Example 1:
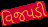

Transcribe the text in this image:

વિજપડી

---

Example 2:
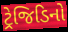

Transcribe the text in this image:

ટ્રેજિડિનો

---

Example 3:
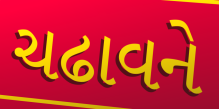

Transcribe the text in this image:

ચઢાવને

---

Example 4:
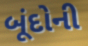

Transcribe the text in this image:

બૂંદોની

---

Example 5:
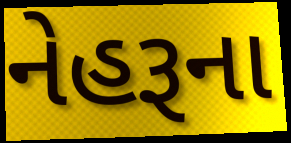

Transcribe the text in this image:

નેહરૂના